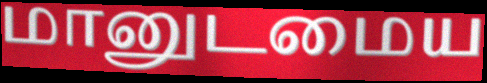
மானுடமைய